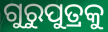
ଗୁରୁପୁତ୍ରକୁ